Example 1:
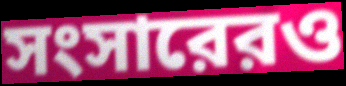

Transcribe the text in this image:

সংসারেরও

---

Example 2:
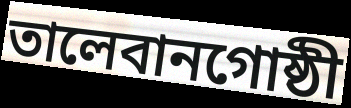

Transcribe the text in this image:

তালেবানগোষ্ঠী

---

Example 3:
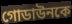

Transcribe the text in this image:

গোডাউনকে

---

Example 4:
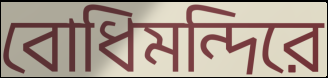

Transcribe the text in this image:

বোধিমন্দিরে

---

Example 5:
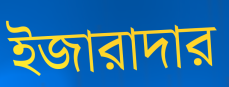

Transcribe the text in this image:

ইজারাদার